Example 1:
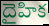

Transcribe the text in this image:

దైహిక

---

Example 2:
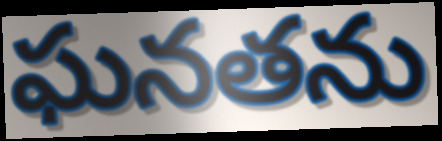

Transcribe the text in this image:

ఘనతను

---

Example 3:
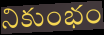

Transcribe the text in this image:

నికుంభం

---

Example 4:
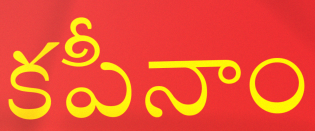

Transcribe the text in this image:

కపీనాం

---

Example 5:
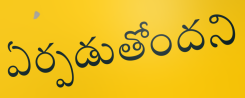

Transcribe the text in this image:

ఏర్పడుతోందని